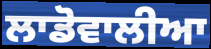
ਲਾਡੋਵਾਲੀਆ